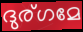
ദുര്ഗമേ